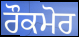
ਰੌਕਮੋਰ